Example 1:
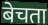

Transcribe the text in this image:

बेचता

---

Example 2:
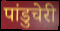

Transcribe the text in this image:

पांडुचेरी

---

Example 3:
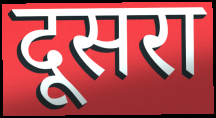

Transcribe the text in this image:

दूसरा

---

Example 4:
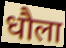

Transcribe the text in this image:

धौला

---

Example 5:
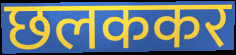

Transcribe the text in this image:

छलककर